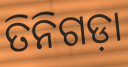
ତିନିଗଡ଼ା